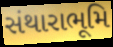
સંથારાભૂમિ